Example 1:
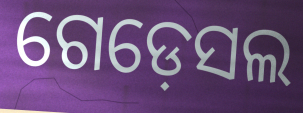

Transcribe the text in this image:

ଗେଡ଼େସଲ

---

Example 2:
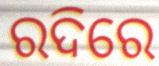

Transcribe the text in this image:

ରଦିରେ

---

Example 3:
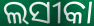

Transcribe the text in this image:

ଲସୀକା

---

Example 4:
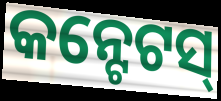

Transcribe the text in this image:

କନ୍ଟେଟସ୍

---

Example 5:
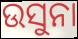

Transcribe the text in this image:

ଉସୁନା